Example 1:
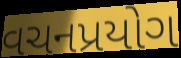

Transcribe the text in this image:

વચનપ્રયોગ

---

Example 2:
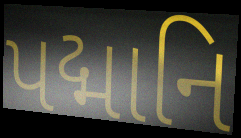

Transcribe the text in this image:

પદ્માનિ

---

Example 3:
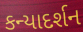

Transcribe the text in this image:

કન્યાદર્શન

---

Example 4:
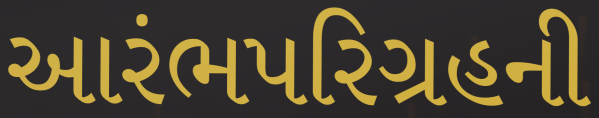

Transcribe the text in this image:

આરંભપરિગ્રહની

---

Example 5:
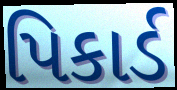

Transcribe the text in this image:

પિકાર્ડ